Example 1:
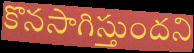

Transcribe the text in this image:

కొనసాగిస్తుందని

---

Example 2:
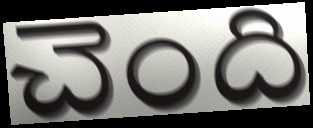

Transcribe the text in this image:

చెంది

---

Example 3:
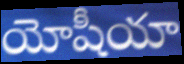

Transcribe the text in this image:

యోషీయా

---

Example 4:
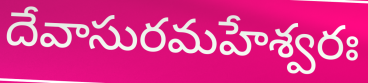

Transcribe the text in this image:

దేవాసురమహేశ్వరః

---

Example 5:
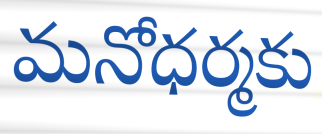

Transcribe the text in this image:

మనోధర్మకు